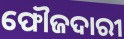
ଫୌଜଦାରୀ